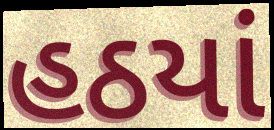
હઠયાં